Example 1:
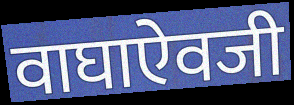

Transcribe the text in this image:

वाघाऐवजी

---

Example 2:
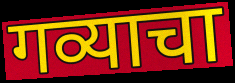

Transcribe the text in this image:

गव्याचा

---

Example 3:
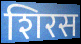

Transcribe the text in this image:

शिरस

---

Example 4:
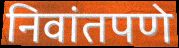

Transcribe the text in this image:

निवांतपणे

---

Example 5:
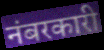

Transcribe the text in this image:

नंबरकारी